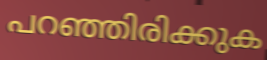
പറഞ്ഞിരിക്കുക